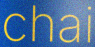
chai